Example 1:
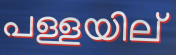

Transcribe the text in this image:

പള്ളയില്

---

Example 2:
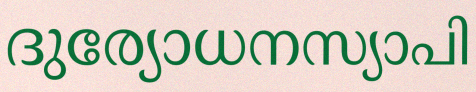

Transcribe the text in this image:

ദുര്യോധനസ്യാപി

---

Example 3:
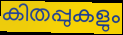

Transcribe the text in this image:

കിതപ്പുകളും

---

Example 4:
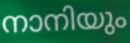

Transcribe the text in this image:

നാനിയും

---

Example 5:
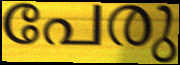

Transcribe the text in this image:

പേരു